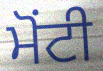
ਮੋਂਟੀ